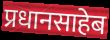
प्रधानसाहेब